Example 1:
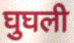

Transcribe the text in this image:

घुघली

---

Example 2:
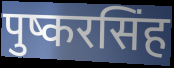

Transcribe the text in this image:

पुष्करसिंह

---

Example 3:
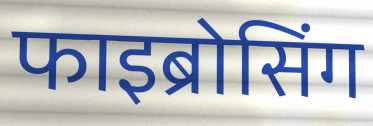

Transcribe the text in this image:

फाइब्रोसिंग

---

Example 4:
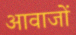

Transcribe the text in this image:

आवाजों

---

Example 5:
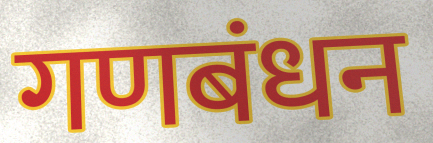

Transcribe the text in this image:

गणबंधन